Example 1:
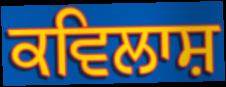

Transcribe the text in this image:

ਕਵਿਲਾਸ਼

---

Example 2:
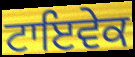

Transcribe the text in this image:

ਟਾਇਵੇਕ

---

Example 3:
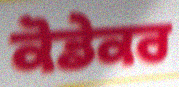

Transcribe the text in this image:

ਕੋਡੇਕਰ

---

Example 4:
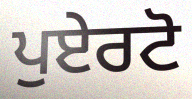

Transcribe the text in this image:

ਪੁਏਰਟੋ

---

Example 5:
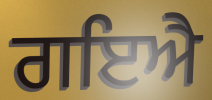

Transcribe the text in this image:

ਗਇਐ